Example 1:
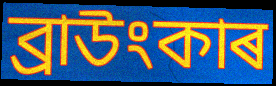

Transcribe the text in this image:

ব্ৰাউংকাৰ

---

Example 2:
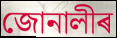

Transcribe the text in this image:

জোনালীৰ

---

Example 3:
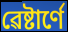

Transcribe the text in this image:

ৱেষ্টাৰ্ণে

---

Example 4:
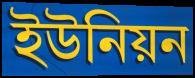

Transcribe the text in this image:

ইউনিয়ন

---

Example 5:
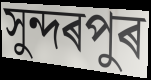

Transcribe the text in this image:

সুন্দৰপুৰ